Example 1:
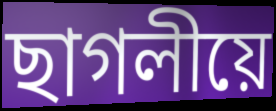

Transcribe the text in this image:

ছাগলীয়ে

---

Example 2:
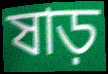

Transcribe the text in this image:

ষাড়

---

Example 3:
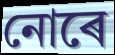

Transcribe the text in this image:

নোৰে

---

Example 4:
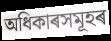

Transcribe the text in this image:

অধিকাৰসমূহৰ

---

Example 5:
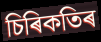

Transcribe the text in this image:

চিৰিকতিৰ